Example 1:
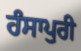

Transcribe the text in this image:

ਹੰਸਾਪੁਰੀ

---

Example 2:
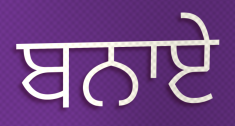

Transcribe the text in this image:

ਬਨਾਏ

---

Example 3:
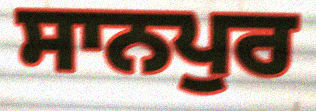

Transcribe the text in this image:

ਸਾਨਪੁਰ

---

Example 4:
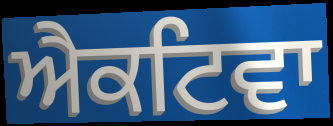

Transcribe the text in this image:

ਐਕਟਿਵਾ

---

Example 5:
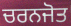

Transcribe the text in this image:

ਚਰਨਜੋਤ